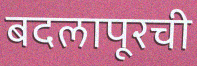
बदलापूरची